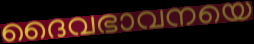
ദൈവഭാവനയെ